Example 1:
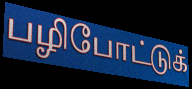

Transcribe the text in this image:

பழிபோட்டுக்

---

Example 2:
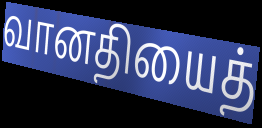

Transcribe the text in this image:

வானதியைத்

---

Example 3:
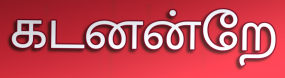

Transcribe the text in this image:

கடனன்றே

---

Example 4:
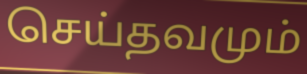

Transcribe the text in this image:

செய்தவமும்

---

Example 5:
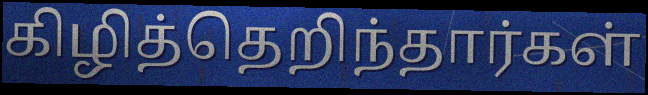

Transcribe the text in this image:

கிழித்தெறிந்தார்கள்